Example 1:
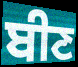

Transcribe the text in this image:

ਬੀਣ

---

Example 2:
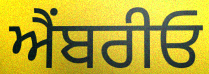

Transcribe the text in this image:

ਐਂਬਰੀਓ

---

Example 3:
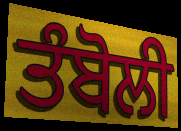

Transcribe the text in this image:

ਤੰਬੋਲੀ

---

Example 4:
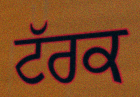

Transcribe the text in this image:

ਟੱਰਕ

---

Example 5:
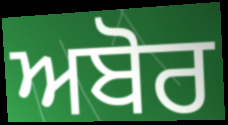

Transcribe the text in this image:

ਅਬੋਰ